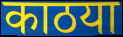
काठया